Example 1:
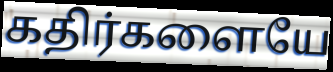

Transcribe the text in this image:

கதிர்களையே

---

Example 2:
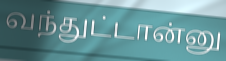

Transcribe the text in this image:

வந்துட்டான்னு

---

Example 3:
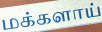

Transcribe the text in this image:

மக்களாய்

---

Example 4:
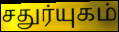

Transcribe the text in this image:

சதுர்யுகம்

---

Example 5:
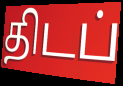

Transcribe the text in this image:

திடப்